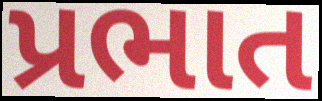
પ્રભાત